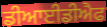
ਡੀਆਈਡੀਐਫ